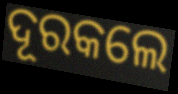
ଦୂରକଲେ